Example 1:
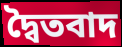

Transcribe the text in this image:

দ্বৈতবাদ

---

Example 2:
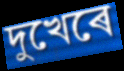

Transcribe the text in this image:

দুখেৰে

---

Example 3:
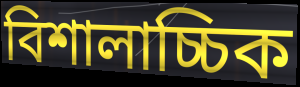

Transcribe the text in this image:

বিশালাচ্চিক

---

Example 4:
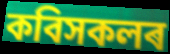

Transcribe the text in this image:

কবিসকলৰ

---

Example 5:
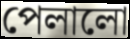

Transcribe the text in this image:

পেলালো